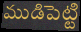
ముడిపెట్టి